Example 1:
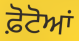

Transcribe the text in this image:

ਫ਼ੋਟੋਆਂ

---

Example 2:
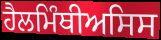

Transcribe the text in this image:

ਹੈਲਮਿੰਥੀਅਸਿਸ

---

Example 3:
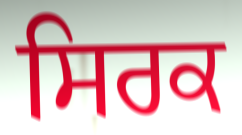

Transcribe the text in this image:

ਸਿਰਕ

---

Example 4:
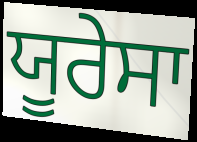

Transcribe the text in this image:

ਯੂਰੇਸਾ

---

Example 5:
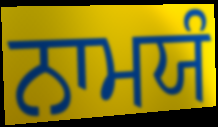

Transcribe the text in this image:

ਨਾਮਯੰ